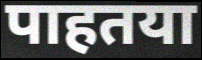
पाहतया